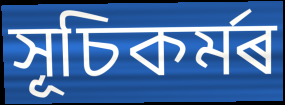
সূচিকৰ্মৰ